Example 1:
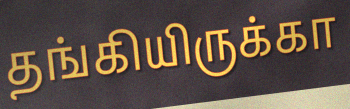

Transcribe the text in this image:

தங்கியிருக்கா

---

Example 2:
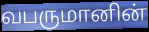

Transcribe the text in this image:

வபருமானின்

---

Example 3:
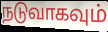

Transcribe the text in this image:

நடுவாகவும்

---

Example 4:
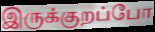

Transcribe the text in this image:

இருக்குறப்போ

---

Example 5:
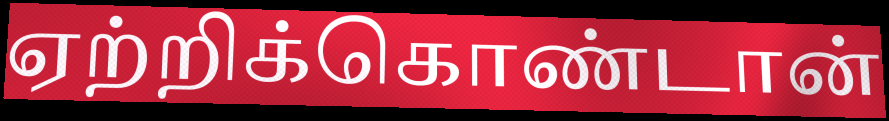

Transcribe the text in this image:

ஏற்றிக்கொண்டான்